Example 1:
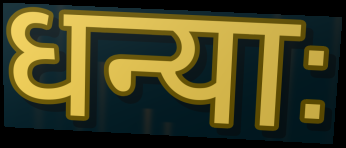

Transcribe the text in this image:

धन्याः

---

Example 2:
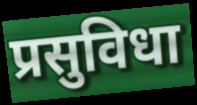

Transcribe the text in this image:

प्रसुविधा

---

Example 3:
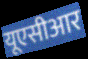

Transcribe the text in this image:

यूएसीआर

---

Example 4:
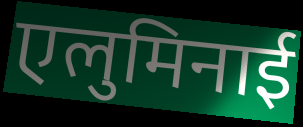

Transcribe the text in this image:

एलुमिनाई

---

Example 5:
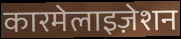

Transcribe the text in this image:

कारमेलाइज़ेशन